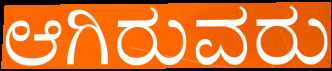
ಆಗಿರುವರು